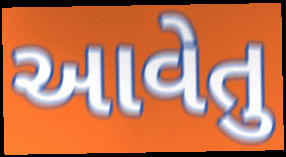
આવેતુ